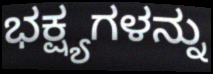
ಭಕ್ಷ್ಯಗಳನ್ನು